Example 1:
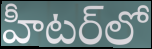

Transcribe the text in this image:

హీటర్‌లో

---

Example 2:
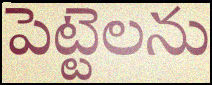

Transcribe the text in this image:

పెట్టెలను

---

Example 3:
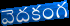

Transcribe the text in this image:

వెదకంగ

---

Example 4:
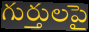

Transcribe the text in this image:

గుర్తులపై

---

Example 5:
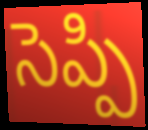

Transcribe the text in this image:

సెప్పి